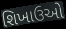
શિખાઉઓ